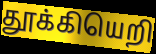
தூக்கியெறி